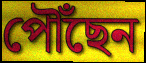
পৌঁছেন